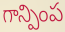
గాన్పింప